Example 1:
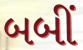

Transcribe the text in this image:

બબીં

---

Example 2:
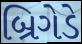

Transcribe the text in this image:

બ્રિગેડે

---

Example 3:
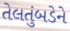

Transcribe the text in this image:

તેલતુંબડેને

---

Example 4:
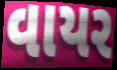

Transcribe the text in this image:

વાયર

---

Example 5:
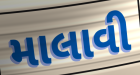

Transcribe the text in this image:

માલાવી